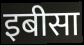
इबीसा